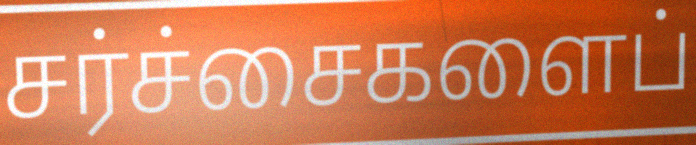
சர்ச்சைகளைப்